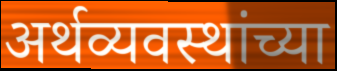
अर्थव्यवस्थांच्या